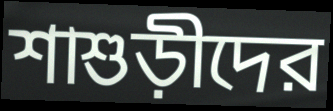
শাশুড়ীদের